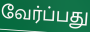
வேர்ப்பது